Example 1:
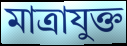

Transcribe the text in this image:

মাত্ৰাযুক্ত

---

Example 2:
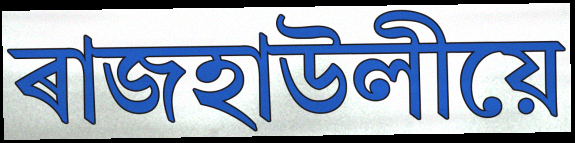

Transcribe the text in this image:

ৰাজহাউলীয়ে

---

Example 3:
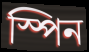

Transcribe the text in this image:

স্পিন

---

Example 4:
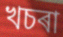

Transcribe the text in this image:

খচৰা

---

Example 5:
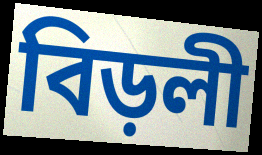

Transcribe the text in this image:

বিড়লী